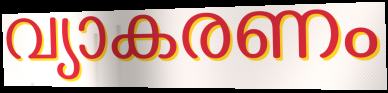
വ്യാകരണം